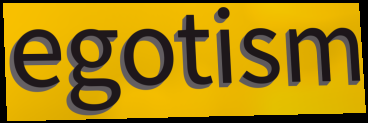
egotism